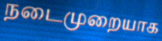
நடைமுறையாக